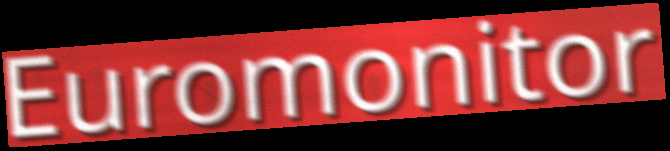
Euromonitor